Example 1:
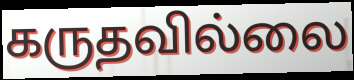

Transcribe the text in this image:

கருதவில்லை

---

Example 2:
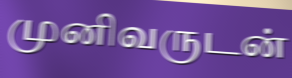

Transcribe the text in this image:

முனிவருடன்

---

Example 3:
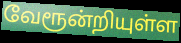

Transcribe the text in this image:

வேரூன்றியுள்ள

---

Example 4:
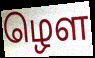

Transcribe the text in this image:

ழௌ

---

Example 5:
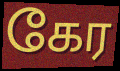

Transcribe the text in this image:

கேர